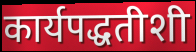
कार्यपद्धतीशी